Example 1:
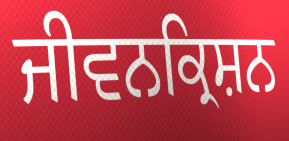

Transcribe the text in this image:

ਜੀਵਨਕ੍ਰਿਸ਼ਨ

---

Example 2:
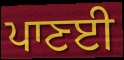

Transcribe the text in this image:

ਪਾਣਈ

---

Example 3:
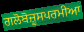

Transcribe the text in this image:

ਗਲੋਬੋਜ਼ੂਸਪਰਮੀਆ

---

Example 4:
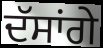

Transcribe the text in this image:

ਦੱਸਾਂਗੇ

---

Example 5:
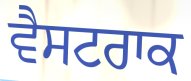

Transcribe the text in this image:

ਵੈਸਟਰਾਕ